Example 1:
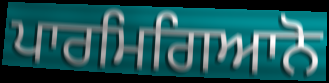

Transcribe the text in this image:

ਪਾਰਮਿਗਿਆਨੋ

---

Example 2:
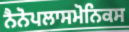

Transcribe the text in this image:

ਨੈਨੋਪਲਾਸਮੋਨਿਕਸ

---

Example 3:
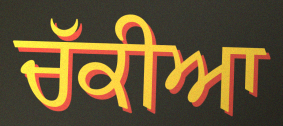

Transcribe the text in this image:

ਚੱਕੀਆ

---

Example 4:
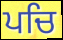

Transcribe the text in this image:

ਪਚਿ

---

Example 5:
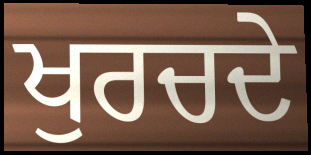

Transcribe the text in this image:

ਖੁਰਚਦੇ